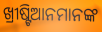
ଖ୍ରୀଷ୍ଟିଆନମାନଙ୍କ